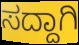
ಸದ್ದಾಗಿ